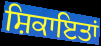
ਸ਼ਿਕਾਇਤਾਂ